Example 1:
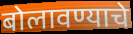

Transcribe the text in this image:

बोलावण्याचे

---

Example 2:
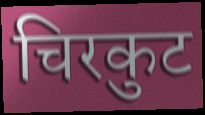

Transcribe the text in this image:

चिरकुट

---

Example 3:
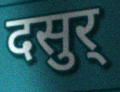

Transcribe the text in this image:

दसुर्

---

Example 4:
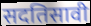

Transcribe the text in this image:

सदतिसावी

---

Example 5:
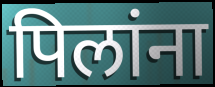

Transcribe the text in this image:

पिलांना